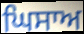
ਘਿਸਾਅ